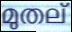
മുതല്